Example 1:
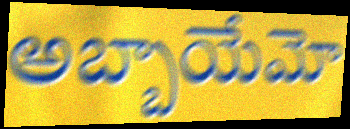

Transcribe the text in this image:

అబ్బాయేమో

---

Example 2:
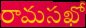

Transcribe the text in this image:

రామసఖో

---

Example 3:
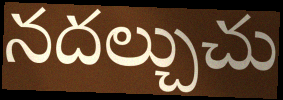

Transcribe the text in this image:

నదల్చుచు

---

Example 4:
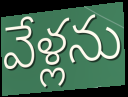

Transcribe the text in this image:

వేళ్లను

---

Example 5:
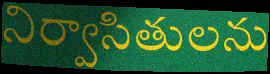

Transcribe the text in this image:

నిర్వాసితులను